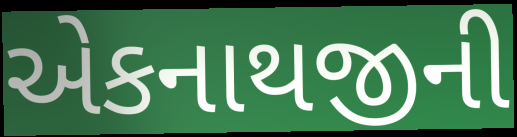
એકનાથજીની